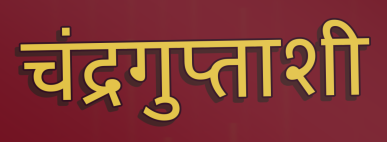
चंद्रगुप्ताशी